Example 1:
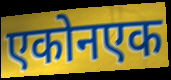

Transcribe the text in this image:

एकोनएक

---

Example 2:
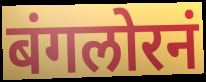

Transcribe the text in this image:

बंगलोरनं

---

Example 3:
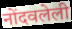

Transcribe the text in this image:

नोंदवलेली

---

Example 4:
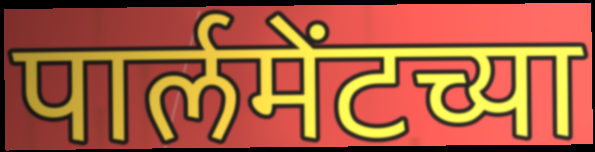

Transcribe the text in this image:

पार्लमेंटच्या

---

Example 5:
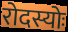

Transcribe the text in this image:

रोदस्योः